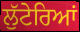
ਲੁੱਟੇਰਿਆਂ